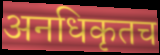
अनधिकृतच